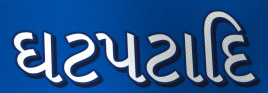
ઘટપટાદિ